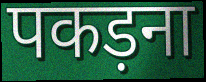
पकड़ना